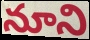
నూని